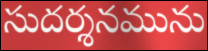
సుదర్శనమును